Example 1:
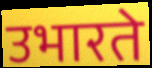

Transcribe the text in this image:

उभारते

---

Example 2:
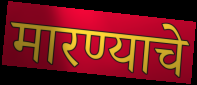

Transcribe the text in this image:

मारण्याचे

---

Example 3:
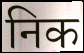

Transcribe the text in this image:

निक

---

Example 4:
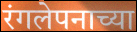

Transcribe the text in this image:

रंगलेपनाच्या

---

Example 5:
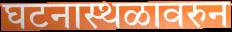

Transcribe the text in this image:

घटनास्थळावरुन